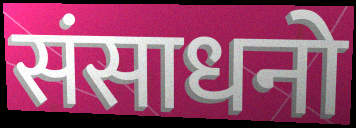
संसाधनो